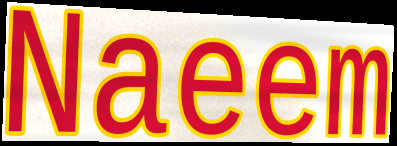
Naeem